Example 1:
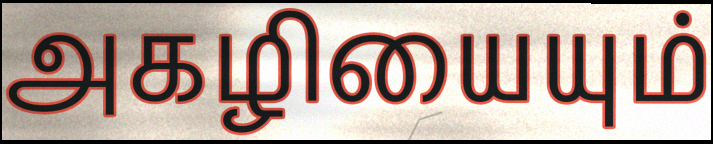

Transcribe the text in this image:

அகழியையும்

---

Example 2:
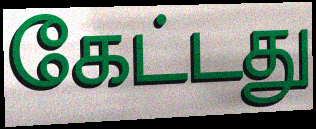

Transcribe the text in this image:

கேட்டது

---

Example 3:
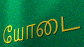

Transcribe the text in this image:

யோடை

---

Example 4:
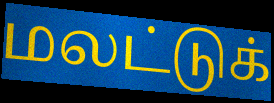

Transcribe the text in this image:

மலட்டுக்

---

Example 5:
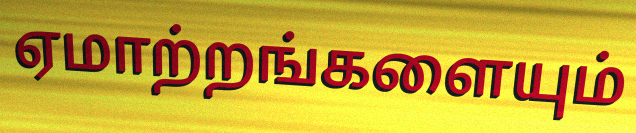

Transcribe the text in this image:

ஏமாற்றங்களையும்